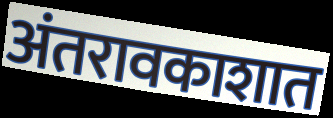
अंतरावकाशात